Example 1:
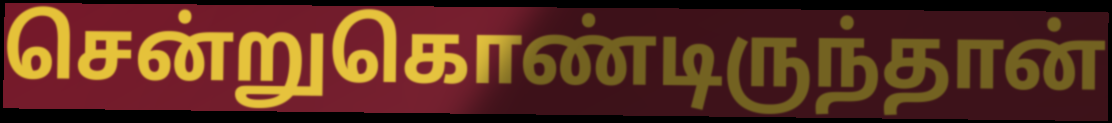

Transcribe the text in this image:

சென்றுகொண்டிருந்தான்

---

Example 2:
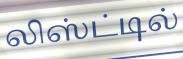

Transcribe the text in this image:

லிஸ்ட்டில்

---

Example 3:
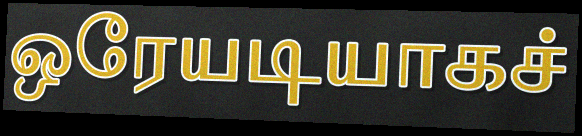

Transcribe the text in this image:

ஒரேயடியாகச்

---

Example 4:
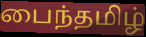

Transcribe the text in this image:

பைந்தமிழ்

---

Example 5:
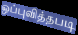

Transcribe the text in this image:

ஒப்புவித்தபடி